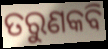
ତରୁଣକବି